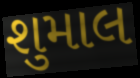
શુમાલ